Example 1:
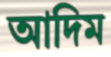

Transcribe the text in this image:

আদিম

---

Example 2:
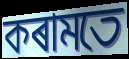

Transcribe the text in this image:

কৰামতে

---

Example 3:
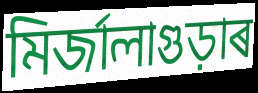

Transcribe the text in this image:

মিৰ্জালাগুড়াৰ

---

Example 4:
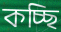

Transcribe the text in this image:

কচ্ছি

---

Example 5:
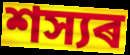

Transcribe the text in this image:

শস্যৰ